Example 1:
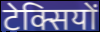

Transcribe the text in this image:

टेक्सियों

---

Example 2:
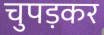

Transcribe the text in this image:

चुपड़कर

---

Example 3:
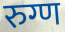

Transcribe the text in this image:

रुग्ण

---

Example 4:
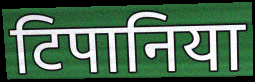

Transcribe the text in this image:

टिपानिया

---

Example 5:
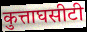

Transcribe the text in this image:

कुत्ताघसीटी